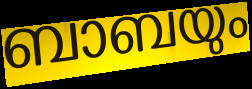
ബാബയും